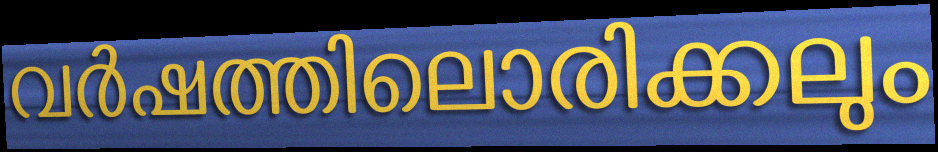
വർഷത്തിലൊരിക്കലും